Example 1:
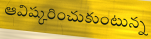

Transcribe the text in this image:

ఆవిష్కరించుకుంటున్న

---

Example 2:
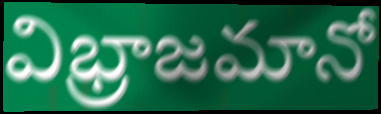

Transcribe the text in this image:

విభ్రాజమానో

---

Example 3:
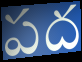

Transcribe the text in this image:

పద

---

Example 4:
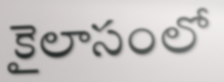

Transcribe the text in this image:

కైలాసంలో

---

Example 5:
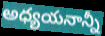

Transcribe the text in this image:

అధ్యయనాన్నీ